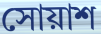
সোয়াশ